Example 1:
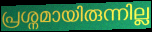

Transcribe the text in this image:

പ്രശ്നമായിരുന്നില്ല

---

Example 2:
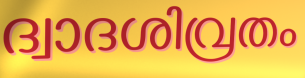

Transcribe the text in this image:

ദ്വാദശിവ്രതം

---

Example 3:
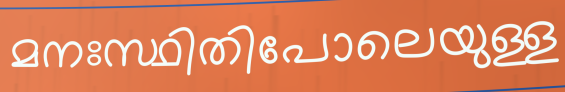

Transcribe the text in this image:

മനഃസ്ഥിതിപോലെയുള്ള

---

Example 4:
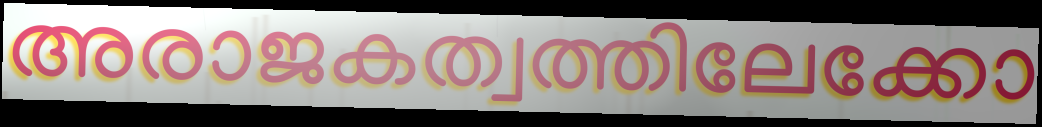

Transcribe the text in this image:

അരാജകത്വത്തിലേക്കോ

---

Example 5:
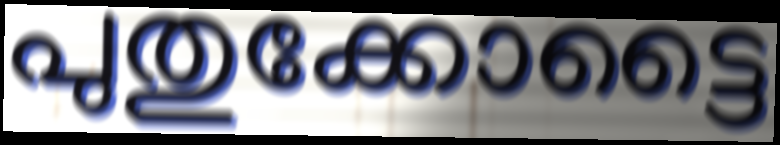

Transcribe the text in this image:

പുതുക്കോട്ടൈ